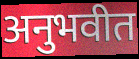
अनुभवीत